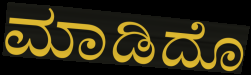
ಮಾಡಿದೊ